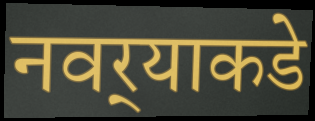
नवर्याकडे